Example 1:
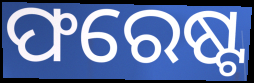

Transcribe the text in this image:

ଫରେଷ୍ଟ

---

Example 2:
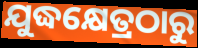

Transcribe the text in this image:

ଯୁଦ୍ଧକ୍ଷେତ୍ରଠାରୁ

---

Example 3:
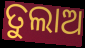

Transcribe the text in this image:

ତୁଲାଅ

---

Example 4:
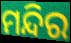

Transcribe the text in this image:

ମନ୍ଦିର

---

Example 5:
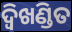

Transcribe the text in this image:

ଦ୍ଵିଖଣ୍ଡିତ